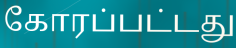
கோரப்பட்டது